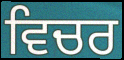
ਵਿਚਰ